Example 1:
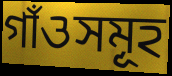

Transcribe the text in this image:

গাঁওসমূহ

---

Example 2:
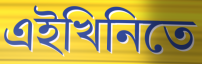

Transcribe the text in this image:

এইখিনিতে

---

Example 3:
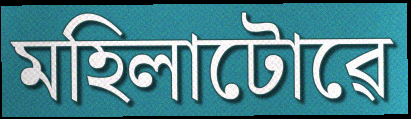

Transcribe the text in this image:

মহিলাটোৱে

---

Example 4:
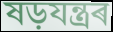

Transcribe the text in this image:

ষড়যন্ত্ৰৰ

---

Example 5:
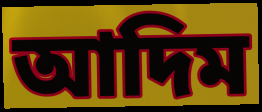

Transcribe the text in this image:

আদিম